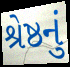
શ્રેષ્ઠનું